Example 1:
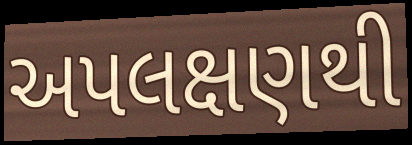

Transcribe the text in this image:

અપલક્ષણથી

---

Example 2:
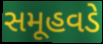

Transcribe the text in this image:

સમૂહવડે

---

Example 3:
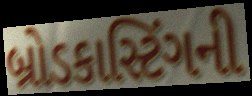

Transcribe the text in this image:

બ્રોડકાસ્ટિંગની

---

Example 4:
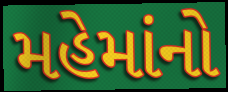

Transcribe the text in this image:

મહેમાંનો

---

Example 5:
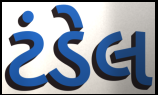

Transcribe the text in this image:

ટંડેલ